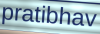
pratibhav